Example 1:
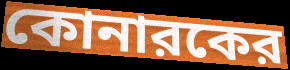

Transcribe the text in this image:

কোনারকের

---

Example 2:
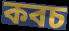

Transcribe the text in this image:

কবচ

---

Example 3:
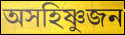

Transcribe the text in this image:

অসহিষ্ণুজন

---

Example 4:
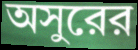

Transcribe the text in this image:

অসুরের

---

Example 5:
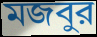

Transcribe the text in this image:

মজবুর